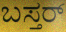
ಬಸ್ತರ್